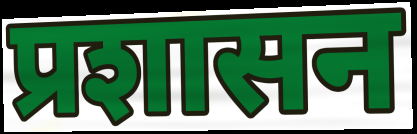
प्रशासन